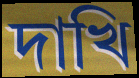
দাখি